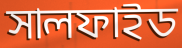
সালফাইড